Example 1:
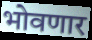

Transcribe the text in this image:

भोवणार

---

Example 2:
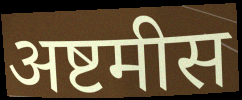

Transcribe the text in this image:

अष्टमीस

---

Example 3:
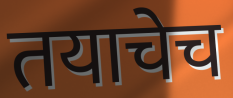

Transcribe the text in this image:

तयाचेच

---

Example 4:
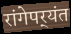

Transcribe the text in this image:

रांगेपर्यंत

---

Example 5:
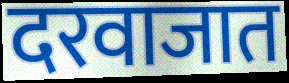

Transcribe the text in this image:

दरवाजात